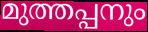
മുത്തപ്പനും